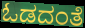
ಓಡದಂತೆ